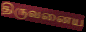
திருவனைய